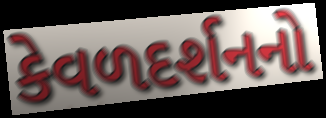
કેવળદર્શનનો